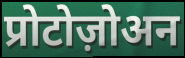
प्रोटोज़ोअन